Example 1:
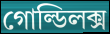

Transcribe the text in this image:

গোল্ডিলক্স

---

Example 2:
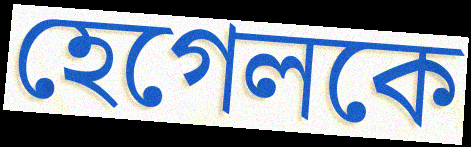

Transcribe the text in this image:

হেগেলকে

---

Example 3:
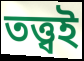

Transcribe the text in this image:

তত্ত্বই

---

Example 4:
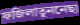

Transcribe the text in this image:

ফজিলাতুননেছা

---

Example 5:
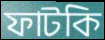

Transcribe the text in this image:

ফাটকি